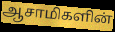
ஆசாமிகளின்